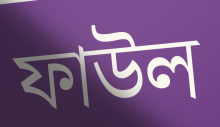
ফাউল